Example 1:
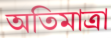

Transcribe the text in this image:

অতিমাত্ৰা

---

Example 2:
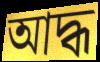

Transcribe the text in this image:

আদ্ধ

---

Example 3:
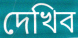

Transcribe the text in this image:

দেখিব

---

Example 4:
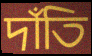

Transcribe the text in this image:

দাঁতি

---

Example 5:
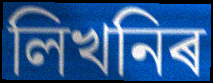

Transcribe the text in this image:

লিখনিৰ